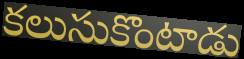
కలుసుకొంటాడు